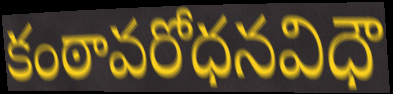
కంఠావరోధనవిధౌ